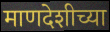
माणदेशीच्या